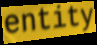
entity